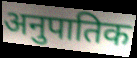
अनुपातिक